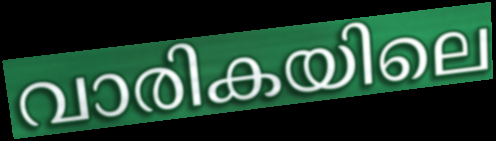
വാരികയിലെ